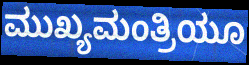
ಮುಖ್ಯಮಂತ್ರಿಯೂ